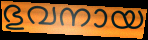
ഭുവനായ